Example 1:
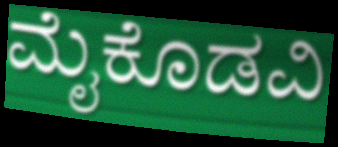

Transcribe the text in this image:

ಮೈಕೊಡವಿ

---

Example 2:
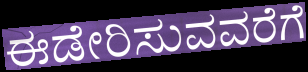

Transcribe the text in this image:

ಈಡೇರಿಸುವವರೆಗೆ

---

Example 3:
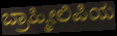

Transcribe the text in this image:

ಬ್ರಾಹ್ಮೀಲಿಪಿಯ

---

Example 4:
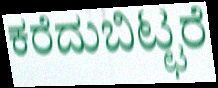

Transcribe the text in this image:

ಕರೆದುಬಿಟ್ಟರೆ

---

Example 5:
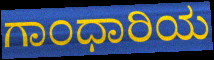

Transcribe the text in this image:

ಗಾಂಧಾರಿಯ